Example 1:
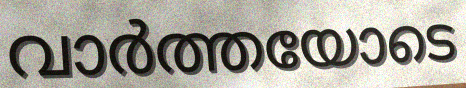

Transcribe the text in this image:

വാർത്തയോടെ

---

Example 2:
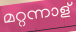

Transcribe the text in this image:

മറ്റന്നാള്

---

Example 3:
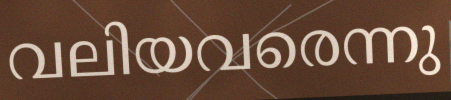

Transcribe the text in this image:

വലിയവരെന്നു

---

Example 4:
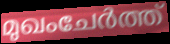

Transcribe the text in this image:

മുഖംചേർത്ത്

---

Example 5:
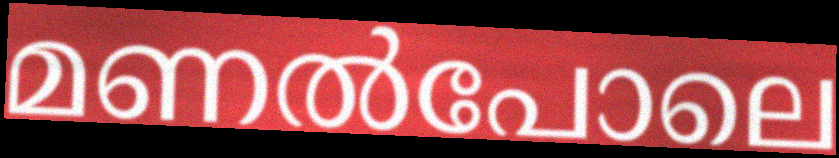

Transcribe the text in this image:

മണൽപോലെ